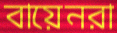
বায়েনরা